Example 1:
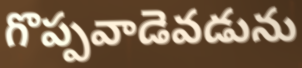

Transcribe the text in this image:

గొప్పవాడెవడును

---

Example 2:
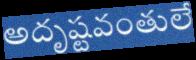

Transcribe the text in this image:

అదృష్టవంతులే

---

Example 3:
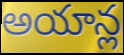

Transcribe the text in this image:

అయాన్ల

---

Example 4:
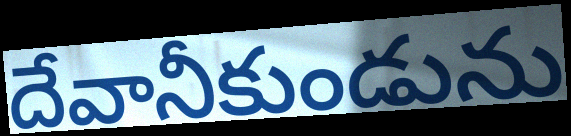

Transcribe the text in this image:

దేవానీకుండును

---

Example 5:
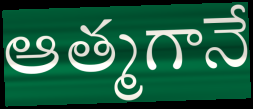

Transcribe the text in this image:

ఆత్మగానే